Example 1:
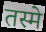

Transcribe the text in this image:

तस्मे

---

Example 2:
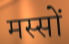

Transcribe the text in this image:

मस्सों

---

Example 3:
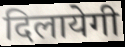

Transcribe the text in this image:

दिलायेगी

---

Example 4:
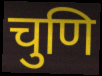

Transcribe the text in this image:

चुणि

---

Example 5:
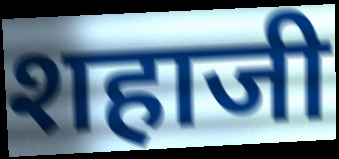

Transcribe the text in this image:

शहाजी